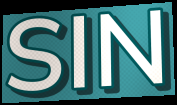
SIN